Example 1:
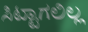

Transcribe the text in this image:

ಸಿಟ್ಟಾಗಲಿಲ್ಲ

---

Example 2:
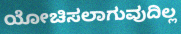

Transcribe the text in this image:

ಯೋಚಿಸಲಾಗುವುದಿಲ್ಲ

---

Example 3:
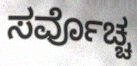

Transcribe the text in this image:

ಸರ್ವೊಚ್ಚ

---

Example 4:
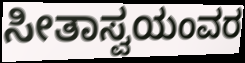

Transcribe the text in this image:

ಸೀತಾಸ್ವಯಂವರ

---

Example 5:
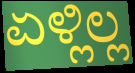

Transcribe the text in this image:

ಏಳ್ಲಿಲ್ಲ